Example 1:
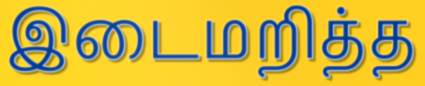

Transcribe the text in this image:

இடைமறித்த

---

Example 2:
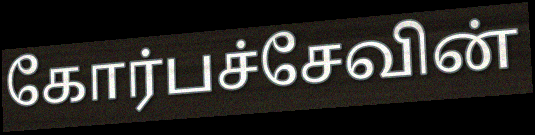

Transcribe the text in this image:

கோர்பச்சேவின்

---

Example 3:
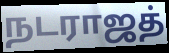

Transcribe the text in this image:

நடராஜத்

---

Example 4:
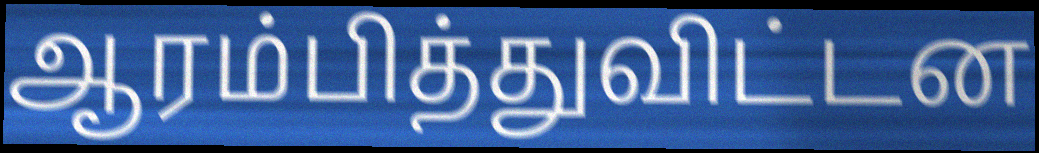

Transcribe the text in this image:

ஆரம்பித்துவிட்டன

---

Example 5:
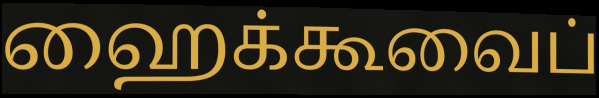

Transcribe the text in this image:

ஹைக்கூவைப்